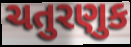
ચતુરણુક